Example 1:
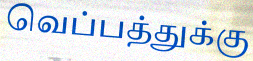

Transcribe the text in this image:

வெப்பத்துக்கு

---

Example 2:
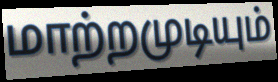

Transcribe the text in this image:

மாற்றமுடியும்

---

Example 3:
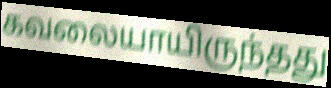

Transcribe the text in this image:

கவலையாயிருந்தது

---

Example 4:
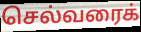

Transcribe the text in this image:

செல்வரைக்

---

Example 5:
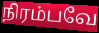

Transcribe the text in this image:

நிரம்பவே